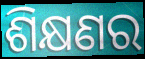
ଶିକ୍ଷଣର